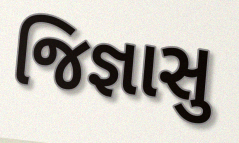
જિજ્ઞાસુ